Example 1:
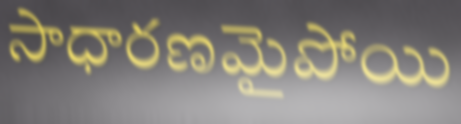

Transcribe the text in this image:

సాధారణమైపోయి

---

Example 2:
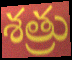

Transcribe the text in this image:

శత్రు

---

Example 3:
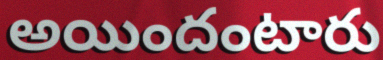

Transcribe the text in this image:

అయిందంటారు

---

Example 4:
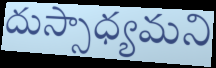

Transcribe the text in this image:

దుస్సాధ్యమని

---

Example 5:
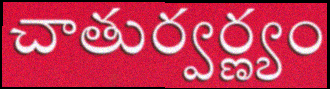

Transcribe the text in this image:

చాతుర్వర్ణ్యం